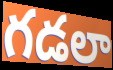
గడలా